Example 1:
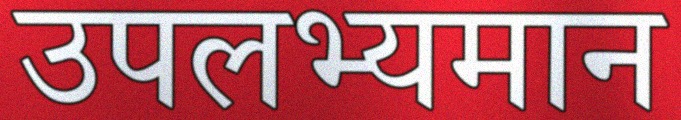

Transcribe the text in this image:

उपलभ्यमान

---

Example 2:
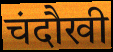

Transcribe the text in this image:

चंदौखी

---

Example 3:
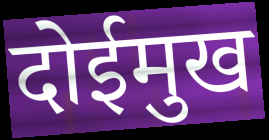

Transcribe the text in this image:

दोईमुख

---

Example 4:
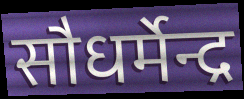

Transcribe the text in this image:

सौधर्मेन्द्र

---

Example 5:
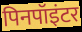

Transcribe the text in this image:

पिनपॉइंटर